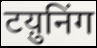
टय़ुनिंग